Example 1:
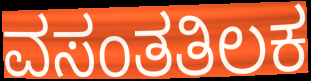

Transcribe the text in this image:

ವಸಂತತಿಲಕ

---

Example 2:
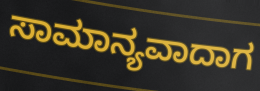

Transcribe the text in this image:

ಸಾಮಾನ್ಯವಾದಾಗ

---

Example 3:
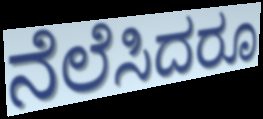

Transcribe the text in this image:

ನೆಲೆಸಿದರೂ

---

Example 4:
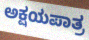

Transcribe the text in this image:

ಅಕ್ಷಯಪಾತ್ರ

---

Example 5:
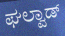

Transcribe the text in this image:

ಘಲ್ವಾಡ್